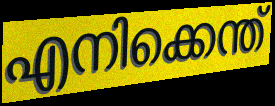
എനിക്കെന്ത്